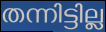
തന്നിട്ടില്ല